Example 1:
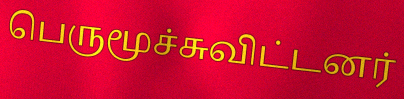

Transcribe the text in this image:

பெருமூச்சுவிட்டனர்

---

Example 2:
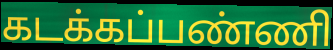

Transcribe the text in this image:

கடக்கப்பண்ணி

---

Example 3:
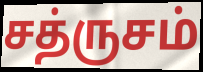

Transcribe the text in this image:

சத்ருசம்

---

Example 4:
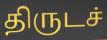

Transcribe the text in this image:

திருடச்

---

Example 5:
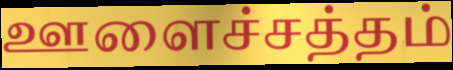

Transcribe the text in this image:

ஊளைச்சத்தம்